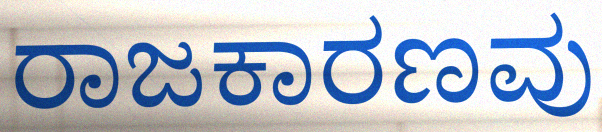
ರಾಜಕಾರಣವು